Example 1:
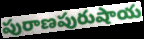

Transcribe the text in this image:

పురాణపురుషాయ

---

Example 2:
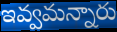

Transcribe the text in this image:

ఇవ్వమన్నారు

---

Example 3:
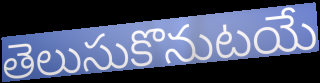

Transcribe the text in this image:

తెలుసుకొనుటయే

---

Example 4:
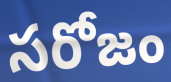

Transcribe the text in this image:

సరోజం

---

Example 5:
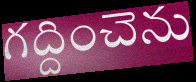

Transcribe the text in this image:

గద్దించెను